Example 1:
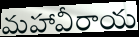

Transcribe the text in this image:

మహావీరాయ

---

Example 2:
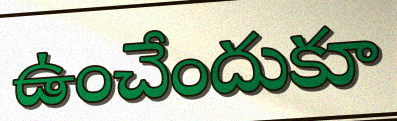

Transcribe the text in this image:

ఉంచేందుకూ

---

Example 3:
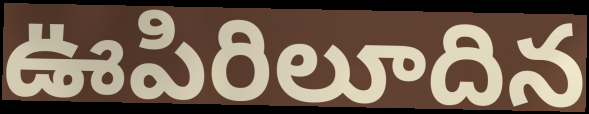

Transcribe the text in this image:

ఊపిరిలూదిన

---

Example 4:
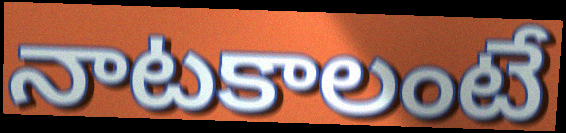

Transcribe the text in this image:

నాటకాలంటే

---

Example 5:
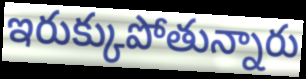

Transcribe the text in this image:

ఇరుక్కుపోతున్నారు